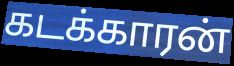
கடக்காரன்